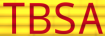
TBSA